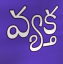
వ్యక్త